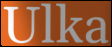
Ulka